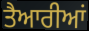
ਤੈਆਰੀਆਂ